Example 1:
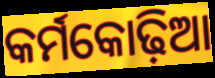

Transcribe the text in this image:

କର୍ମକୋଢ଼ିଆ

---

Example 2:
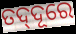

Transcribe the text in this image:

ତଦ୍‍ଦୂରେ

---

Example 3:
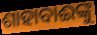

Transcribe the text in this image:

ଶାହାବାଈଙ୍କୁ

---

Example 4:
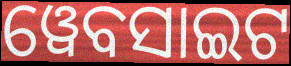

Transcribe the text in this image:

ୱେବସାଇଟ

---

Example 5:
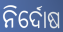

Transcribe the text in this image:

ନିର୍ଦୋଷ